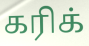
கரிக்